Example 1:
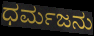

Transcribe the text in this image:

ಧರ್ಮಜನು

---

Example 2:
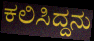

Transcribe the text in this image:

ಕಲಿಸಿದ್ದನು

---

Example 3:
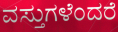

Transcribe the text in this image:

ವಸ್ತುಗಳೆಂದರೆ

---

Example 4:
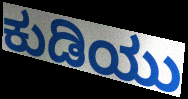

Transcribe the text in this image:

ಕುಡಿಯು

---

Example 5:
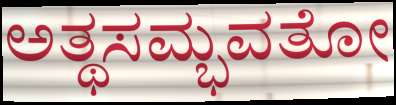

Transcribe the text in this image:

ಅತ್ಥಸಮ್ಭವತೋ